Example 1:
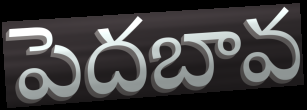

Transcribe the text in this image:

పెదబావ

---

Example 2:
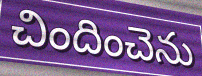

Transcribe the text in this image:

చిందించెను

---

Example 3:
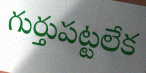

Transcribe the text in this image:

గుర్తుపట్టలేక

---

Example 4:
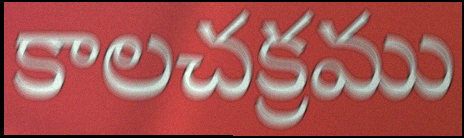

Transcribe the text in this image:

కాలచక్రము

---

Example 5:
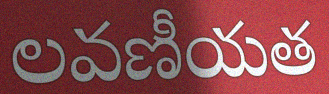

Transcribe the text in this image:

లవణీయత